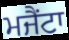
ਮਜੈਂਟਾ